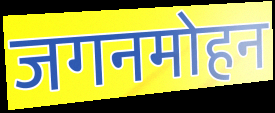
जगनमोहन